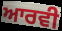
ਆਰਵੀ